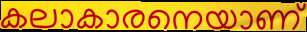
കലാകാരനെയാണ്